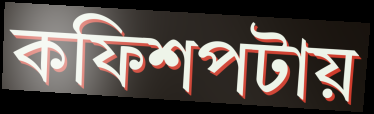
কফিশপটায়